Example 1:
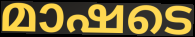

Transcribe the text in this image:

മാഷടെ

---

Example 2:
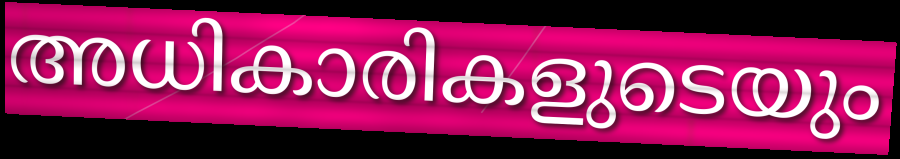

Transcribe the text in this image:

അധികാരികളുടെയും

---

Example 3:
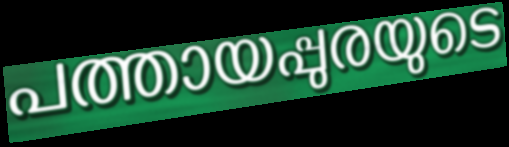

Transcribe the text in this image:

പത്തായപ്പുരയുടെ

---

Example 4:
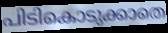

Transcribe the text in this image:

പിടികൊടുക്കാതെ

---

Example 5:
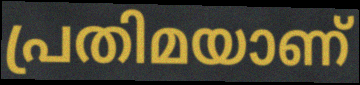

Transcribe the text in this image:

പ്രതിമയാണ്